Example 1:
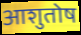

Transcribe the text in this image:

आशुतोष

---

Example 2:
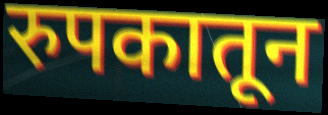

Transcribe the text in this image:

रुपकातून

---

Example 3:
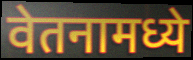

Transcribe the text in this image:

वेतनामध्ये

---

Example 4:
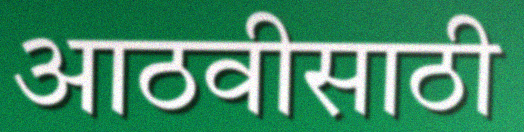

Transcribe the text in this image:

आठवीसाठी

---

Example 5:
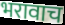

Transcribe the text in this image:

भरावाच